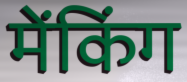
मेंकिंग